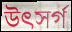
উৎসর্গ